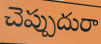
చెప్పుదురా